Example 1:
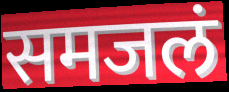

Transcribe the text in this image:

समजलं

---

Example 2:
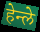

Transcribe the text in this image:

हेन्ले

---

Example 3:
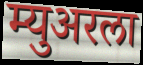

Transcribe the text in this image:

म्युअरला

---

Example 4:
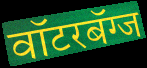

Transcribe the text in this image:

वॉटरबॅग्ज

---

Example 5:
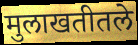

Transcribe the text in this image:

मुलाखतीतले